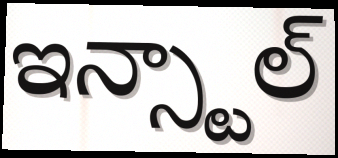
ఇన్స్టాల్